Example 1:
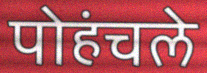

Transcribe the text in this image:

पोहंचले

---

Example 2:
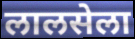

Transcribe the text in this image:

लालसेला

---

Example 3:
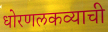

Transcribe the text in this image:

धोरणलकव्याची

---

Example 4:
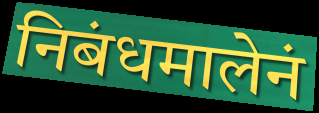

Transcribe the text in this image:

निबंधमालेनं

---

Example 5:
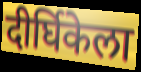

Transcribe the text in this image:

दीर्घिकेला